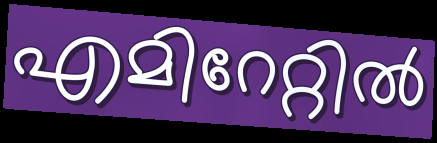
എമിറേറ്റിൽ